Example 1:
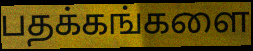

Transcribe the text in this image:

பதக்கங்களை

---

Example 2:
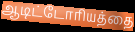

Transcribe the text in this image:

ஆடிட்டோரியத்தை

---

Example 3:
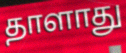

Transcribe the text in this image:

தாளாது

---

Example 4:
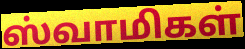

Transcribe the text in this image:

ஸ்வாமிகள்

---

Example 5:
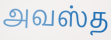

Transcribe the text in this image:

அவஸ்த